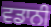
ਵਡਾਨੀ